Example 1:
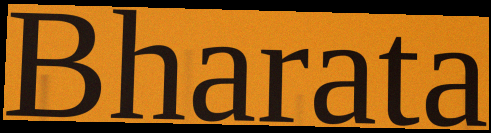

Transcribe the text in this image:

Bharata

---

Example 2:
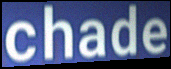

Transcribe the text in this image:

chade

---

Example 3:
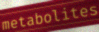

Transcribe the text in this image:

metabolites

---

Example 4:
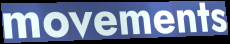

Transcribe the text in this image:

movements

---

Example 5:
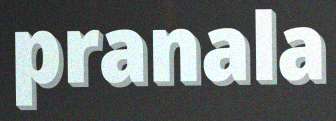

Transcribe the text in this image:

pranala